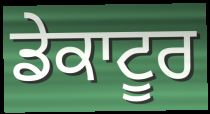
ਡੇਕਾਟੂਰ